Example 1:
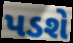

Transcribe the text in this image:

પડશે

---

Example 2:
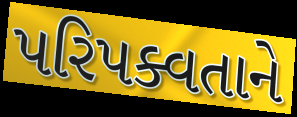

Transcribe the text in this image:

પરિપક્વતાને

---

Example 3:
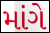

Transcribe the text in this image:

માંગે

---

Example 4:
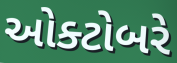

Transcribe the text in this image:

ઓક્ટોબરે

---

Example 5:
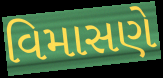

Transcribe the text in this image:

વિમાસણે